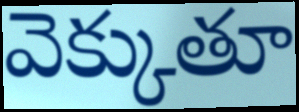
వెక్కుతూ